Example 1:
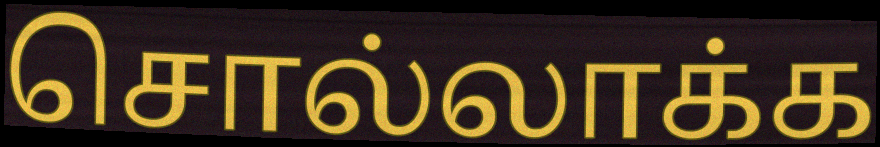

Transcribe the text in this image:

சொல்லாக்க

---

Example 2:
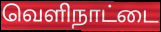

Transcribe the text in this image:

வெளிநாட்டை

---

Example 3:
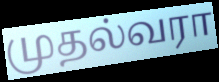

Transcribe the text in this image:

முதல்வரா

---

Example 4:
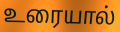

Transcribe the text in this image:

உரையால்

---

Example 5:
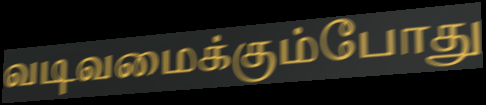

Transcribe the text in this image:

வடிவமைக்கும்போது